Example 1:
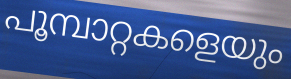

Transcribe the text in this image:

പൂമ്പാറ്റകളെയും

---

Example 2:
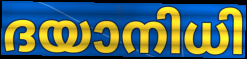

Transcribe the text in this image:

ദയാനിധി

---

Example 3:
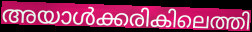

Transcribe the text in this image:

അയാൾക്കരികിലെത്തി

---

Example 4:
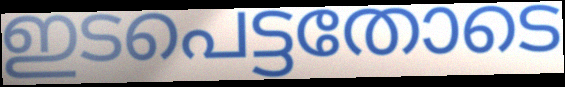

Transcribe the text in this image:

ഇടപെട്ടതോടെ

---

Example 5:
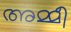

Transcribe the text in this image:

അമ്മീ